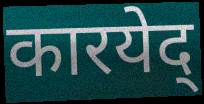
कारयेद्